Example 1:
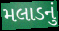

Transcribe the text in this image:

મલાડનું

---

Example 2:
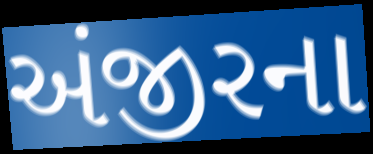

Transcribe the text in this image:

અંજીરના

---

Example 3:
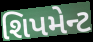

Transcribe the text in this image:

શિપમેન્ટ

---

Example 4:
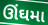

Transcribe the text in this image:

ઊંઘમા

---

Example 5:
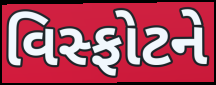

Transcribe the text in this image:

વિસ્ફોટને